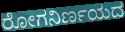
ರೋಗನಿರ್ಣಯದ